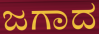
ಜಗಾದ